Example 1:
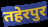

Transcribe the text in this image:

तहेरपुर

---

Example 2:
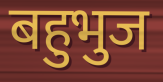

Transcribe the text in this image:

बहुभुज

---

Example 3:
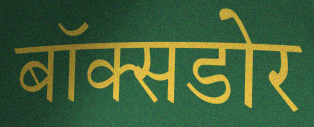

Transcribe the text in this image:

बॉक्सडोर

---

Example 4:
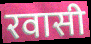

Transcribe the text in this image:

रवासी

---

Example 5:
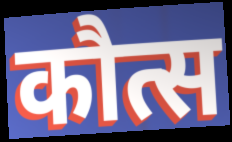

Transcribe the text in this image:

कौत्स